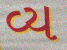
વ્ય